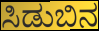
ಸಿಡುಬಿನ